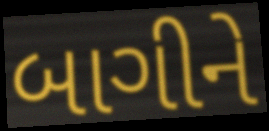
બાગીને